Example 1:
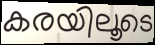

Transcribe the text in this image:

കരയിലൂടെ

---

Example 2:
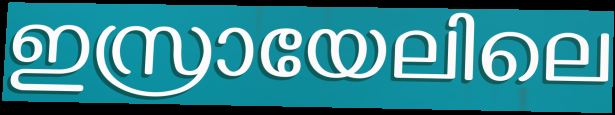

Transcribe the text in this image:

ഇസ്രായേലിലെ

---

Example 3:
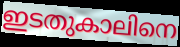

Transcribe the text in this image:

ഇടതുകാലിനെ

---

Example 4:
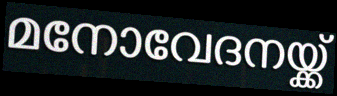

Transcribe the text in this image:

മനോവേദനയ്ക്ക്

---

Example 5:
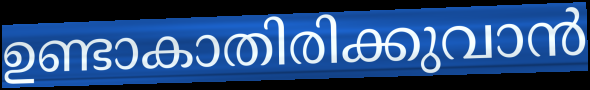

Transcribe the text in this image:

ഉണ്ടാകാതിരിക്കുവാൻ